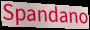
Spandano